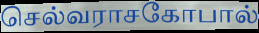
செல்வராசகோபால்